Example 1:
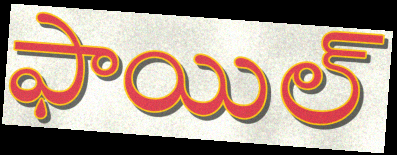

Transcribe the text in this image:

ఫాయిల్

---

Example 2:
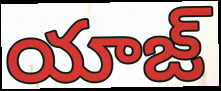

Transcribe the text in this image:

యాజ్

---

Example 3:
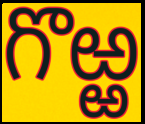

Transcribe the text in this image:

గొఱ్ఱ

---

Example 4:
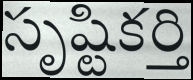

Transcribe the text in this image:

సృష్టికర్తి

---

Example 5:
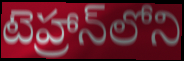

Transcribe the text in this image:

టెహ్రాన్‌లోని